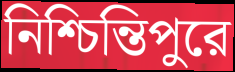
নিশ্চিন্তিপুরে